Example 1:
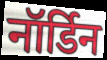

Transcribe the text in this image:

नॉर्डिन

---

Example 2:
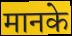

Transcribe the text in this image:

मानके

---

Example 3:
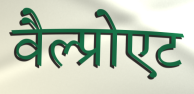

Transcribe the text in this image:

वैल्प्रोएट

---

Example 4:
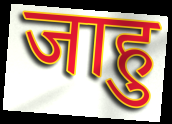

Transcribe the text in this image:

जाहु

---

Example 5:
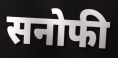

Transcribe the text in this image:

सनोफी